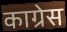
काग्रेस